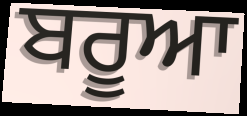
ਬਰੂਆ